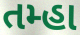
તમ્હા